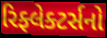
રિફ્લેક્ટર્સનો